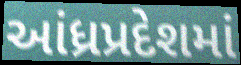
આંધ્રપ્રદેશમાં